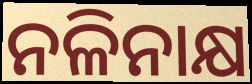
ନଳିନାକ୍ଷ